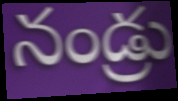
నండ్రు